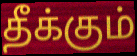
தீக்கும்